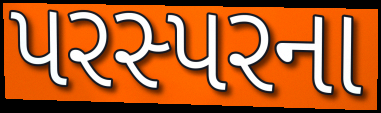
પરસ્પરના